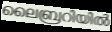
ലൈബ്രറിയിൽ